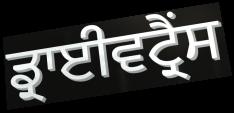
ਡ੍ਰਾਈਵਟ੍ਰੈਂਸ